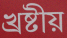
খ্রষ্টীয়